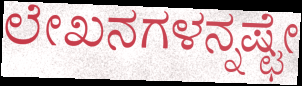
ಲೇಖನಗಳನ್ನಷ್ಟೇ